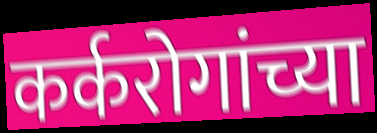
कर्करोगांच्या